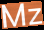
Mz